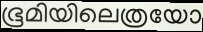
ഭൂമിയിലെത്രയോ